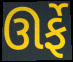
ઊર્ફે